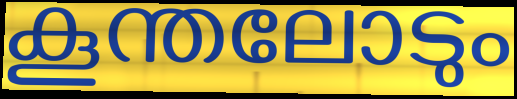
കൂന്തലോടും